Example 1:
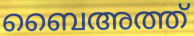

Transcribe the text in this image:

ബൈഅത്ത്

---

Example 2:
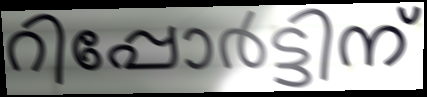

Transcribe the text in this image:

റിപ്പോർട്ടിന്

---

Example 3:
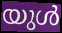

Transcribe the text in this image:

യുൾ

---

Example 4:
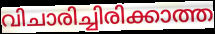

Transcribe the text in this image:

വിചാരിച്ചിരിക്കാത്ത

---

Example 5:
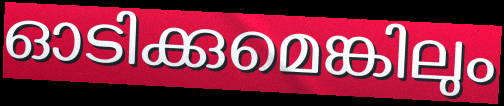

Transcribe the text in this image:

ഓടിക്കുമെങ്കിലും